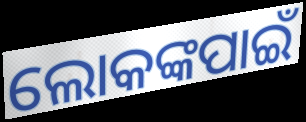
ଲୋକଙ୍କପାଇଁ